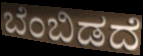
ಬೆಂಬಿಡದೆ